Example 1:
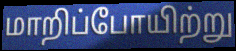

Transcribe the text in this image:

மாறிப்போயிற்று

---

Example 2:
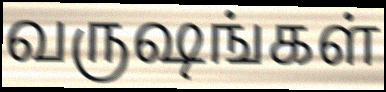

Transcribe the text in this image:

வருஷங்கள்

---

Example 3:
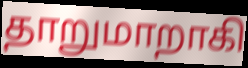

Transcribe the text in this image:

தாறுமாறாகி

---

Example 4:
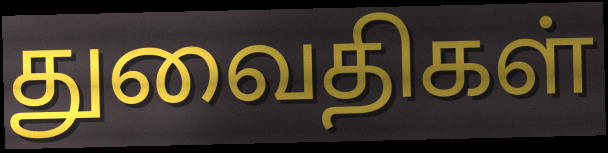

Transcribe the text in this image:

துவைதிகள்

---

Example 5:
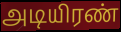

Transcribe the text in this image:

அடியிரண்